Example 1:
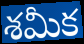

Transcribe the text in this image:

శమీక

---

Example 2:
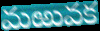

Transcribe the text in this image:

మఱువక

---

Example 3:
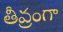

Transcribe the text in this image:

తీవ్రంగా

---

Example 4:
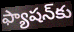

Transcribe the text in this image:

ఫ్యాషన్‌కు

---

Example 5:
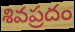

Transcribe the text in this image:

శివప్రదం